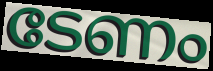
ടേണം